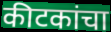
कीटकांचा